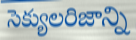
సెక్యులరిజాన్ని